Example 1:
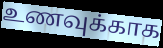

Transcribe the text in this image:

உணவுக்காக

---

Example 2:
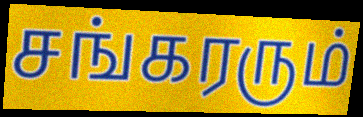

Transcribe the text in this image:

சங்கரரும்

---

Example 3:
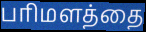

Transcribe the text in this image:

பரிமளத்தை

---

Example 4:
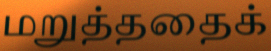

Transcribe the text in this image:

மறுத்ததைக்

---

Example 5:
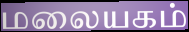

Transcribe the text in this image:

மலையகம்